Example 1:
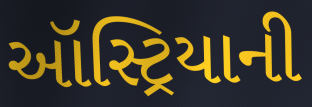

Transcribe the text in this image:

ઑસ્ટ્રિયાની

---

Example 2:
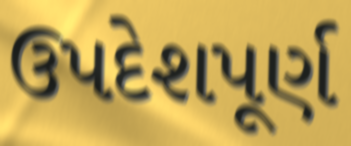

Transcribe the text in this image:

ઉપદેશપૂર્ણ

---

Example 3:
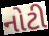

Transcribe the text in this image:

નોટી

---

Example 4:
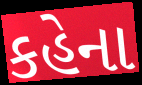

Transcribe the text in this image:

કહેના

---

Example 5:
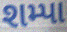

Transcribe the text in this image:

શમ્પા